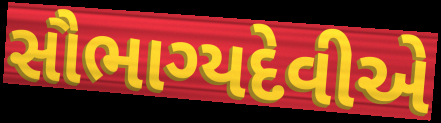
સૌભાગ્યદેવીએ